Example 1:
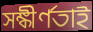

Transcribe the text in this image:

সঙ্কীর্ণতাই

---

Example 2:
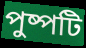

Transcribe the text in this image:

পুষ্পটি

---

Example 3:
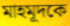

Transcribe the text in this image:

মাহমূদকে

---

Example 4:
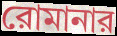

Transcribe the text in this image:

রোমানার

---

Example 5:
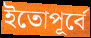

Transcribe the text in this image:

ইতোপূর্বে